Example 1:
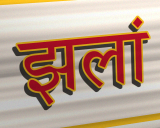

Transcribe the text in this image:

झलां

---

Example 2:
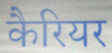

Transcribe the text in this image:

कैरियर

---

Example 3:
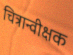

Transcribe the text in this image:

चित्रान्वीक्षक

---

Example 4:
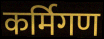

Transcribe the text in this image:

कर्मिगण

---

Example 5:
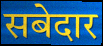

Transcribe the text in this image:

सबेदार